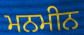
ਮਨਮੀਨ